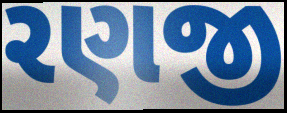
રણજી